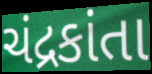
ચંદ્રકાંતા